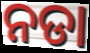
ନଡା